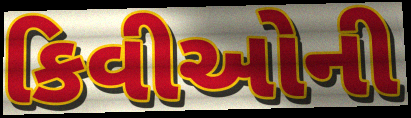
કિવીઓની